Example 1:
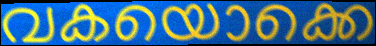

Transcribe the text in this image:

വകയൊക്കെ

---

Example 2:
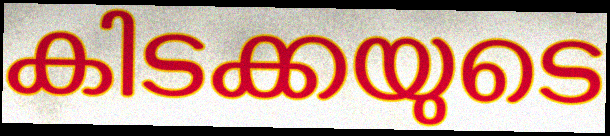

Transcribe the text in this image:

കിടക്കയുടെ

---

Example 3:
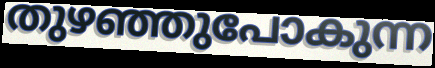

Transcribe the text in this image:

തുഴഞ്ഞുപോകുന്ന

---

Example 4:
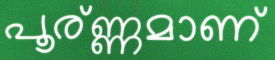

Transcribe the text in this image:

പൂര്ണ്ണമാണ്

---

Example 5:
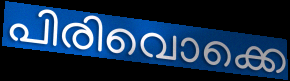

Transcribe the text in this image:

പിരിവൊക്കെ